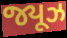
જ્યૂઝ